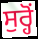
ਸੁਰ੍ਹੋਂ